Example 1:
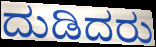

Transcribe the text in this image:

ದುಡಿದರು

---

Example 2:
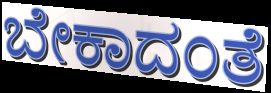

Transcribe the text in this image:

ಬೇಕಾದಂತೆ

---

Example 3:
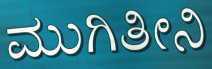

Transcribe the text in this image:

ಮುಗಿತೀನಿ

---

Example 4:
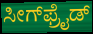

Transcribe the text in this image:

ಸೀಗ್‌ಫ್ರೈಡ್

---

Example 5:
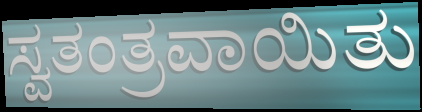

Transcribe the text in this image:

ಸ್ವತಂತ್ರವಾಯಿತು